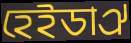
হেইডাঐ